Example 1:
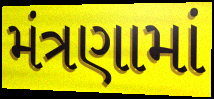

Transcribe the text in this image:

મંત્રણામાં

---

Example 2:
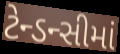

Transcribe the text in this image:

ટેન્ડન્સીમાં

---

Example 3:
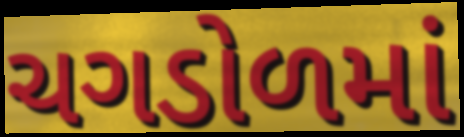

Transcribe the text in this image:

ચગડોળમાં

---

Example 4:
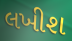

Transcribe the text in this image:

લખીશ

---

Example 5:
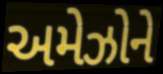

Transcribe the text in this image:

અમેઝોને